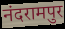
नंदरामपुर